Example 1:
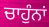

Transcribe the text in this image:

ਚਾਹੁੰਨਾਂ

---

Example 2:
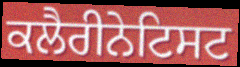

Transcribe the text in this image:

ਕਲੈਰੀਨੇਟਿਸਟ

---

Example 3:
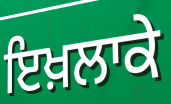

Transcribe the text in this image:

ਇਖ਼ਲਾਕੇ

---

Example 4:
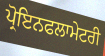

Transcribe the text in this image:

ਪ੍ਰੋਇਨਫਲਾਮੇਟਰੀ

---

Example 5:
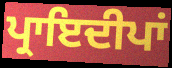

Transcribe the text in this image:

ਪ੍ਰਾਇਦੀਪਾਂ